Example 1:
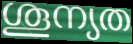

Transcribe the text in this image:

ശൂന്യത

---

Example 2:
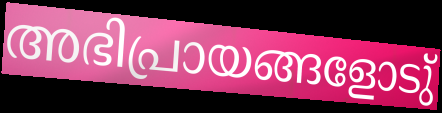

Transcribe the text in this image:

അഭിപ്രായങ്ങളോടു്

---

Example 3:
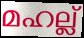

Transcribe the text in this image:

മഹല്ല്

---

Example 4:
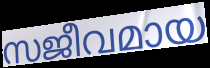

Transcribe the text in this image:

സജീവമായ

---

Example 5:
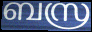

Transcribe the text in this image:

ബസ്ര